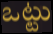
ఒట్టు